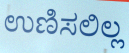
ಉಣಿಸಲಿಲ್ಲ